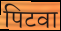
पिटवा